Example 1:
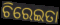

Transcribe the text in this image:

ଚିରେଇତା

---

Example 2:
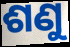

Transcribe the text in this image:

ଶଣୁ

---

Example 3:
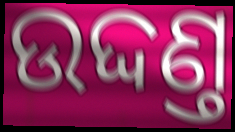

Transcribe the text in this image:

ଉଦ୍ଦଣ୍ତ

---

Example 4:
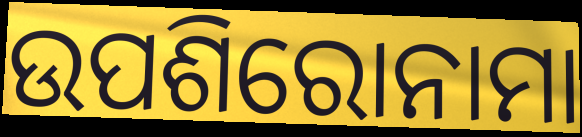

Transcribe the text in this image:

ଉପଶିରୋନାମା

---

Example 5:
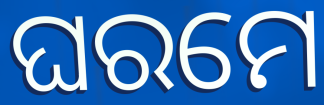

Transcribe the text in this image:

ଘରମେ